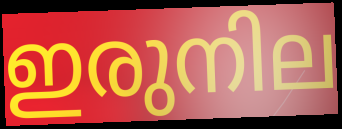
ഇരുനില